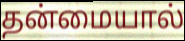
தன்மையால்